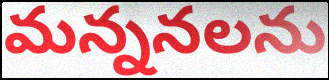
మన్ననలను